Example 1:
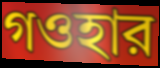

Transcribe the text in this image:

গওহার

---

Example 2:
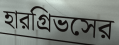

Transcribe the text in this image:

হারগ্রিভসের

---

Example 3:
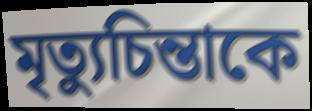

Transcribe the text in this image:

মৃত্যুচিন্তাকে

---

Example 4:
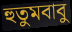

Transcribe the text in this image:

হুতুমবাবু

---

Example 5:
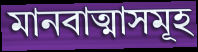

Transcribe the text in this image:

মানবাত্মাসমূহ